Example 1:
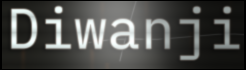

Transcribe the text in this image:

Diwanji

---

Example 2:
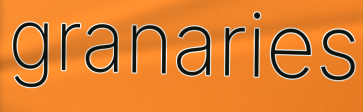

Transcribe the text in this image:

granaries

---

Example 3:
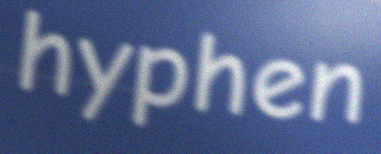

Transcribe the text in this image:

hyphen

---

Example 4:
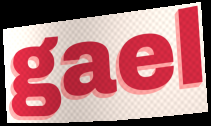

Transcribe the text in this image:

gael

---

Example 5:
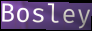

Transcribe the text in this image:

Bosley